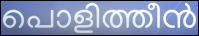
പൊളിത്തീൻ